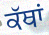
ਕੱਥਾਂ